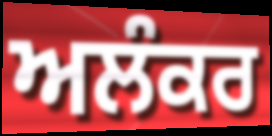
ਅਲੰਕਰ